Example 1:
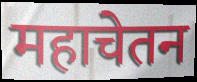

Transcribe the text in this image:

महाचेतन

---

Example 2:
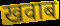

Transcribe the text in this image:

खवाब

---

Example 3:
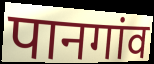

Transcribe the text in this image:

पानगांव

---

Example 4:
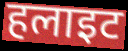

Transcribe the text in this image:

हलाइट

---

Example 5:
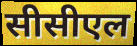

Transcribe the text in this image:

सीसीएल